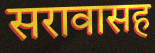
सरावासह